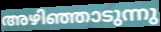
അഴിഞ്ഞാടുന്നു